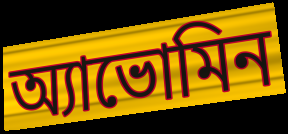
অ্যাভোমিন